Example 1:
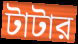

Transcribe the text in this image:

টাটার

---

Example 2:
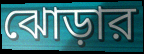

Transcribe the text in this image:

ঝোড়ার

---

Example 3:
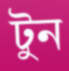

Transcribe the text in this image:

টুন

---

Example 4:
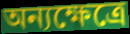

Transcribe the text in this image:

অন্যক্ষেত্রে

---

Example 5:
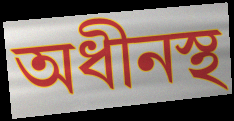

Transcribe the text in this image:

অধীনস্থ